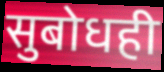
सुबोधही